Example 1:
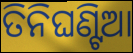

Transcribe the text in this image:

ତିନିଘଣ୍ଟିଆ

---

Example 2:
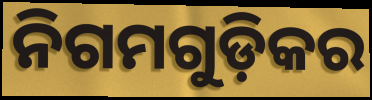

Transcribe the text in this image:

ନିଗମଗୁଡ଼ିକର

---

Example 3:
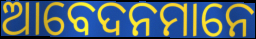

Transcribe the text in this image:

ଆବେଦନମାନେ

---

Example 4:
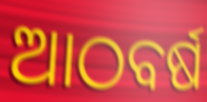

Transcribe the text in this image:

ଆଠବର୍ଷ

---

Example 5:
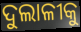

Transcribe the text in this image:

ଦୁଲାଳୀକୁ